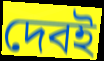
দেবই